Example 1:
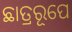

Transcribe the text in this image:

ଛାତ୍ରରୂପେ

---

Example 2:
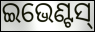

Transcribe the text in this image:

ଇଭେଣ୍ଟସ୍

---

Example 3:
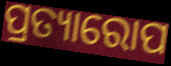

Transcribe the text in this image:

ପ୍ରତ୍ୟାରୋପ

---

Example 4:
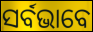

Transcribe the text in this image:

ସର୍ବଭାବେ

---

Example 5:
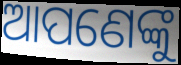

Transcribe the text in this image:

ଆପଣେଙ୍କୁ